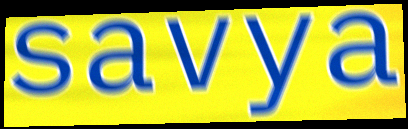
savya